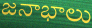
జనాభాలు